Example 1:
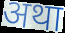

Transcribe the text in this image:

अथा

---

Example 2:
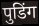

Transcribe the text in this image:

पुडिंग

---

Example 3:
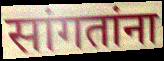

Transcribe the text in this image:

सांगतांना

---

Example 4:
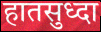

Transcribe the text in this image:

हातसुध्दा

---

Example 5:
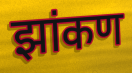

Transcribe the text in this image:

झांकण